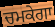
ਚਮਕੇਗਾ